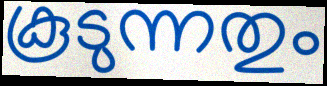
കൂടുന്നതും